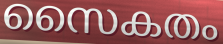
സൈകതം